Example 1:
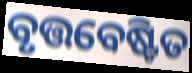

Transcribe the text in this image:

ବୃତ୍ତବେଷ୍ଟିତ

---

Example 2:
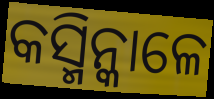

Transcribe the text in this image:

କସ୍ମିନ୍କାଳେ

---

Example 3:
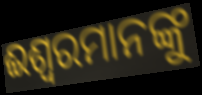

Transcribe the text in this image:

ଈଶ୍ୱରମାନଙ୍କୁ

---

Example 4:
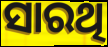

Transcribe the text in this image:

ସାରଥି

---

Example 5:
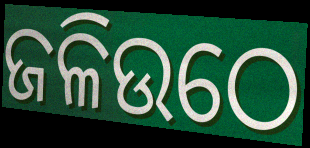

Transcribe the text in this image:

ଜଳିଉଠେ